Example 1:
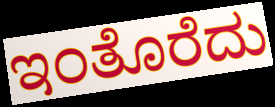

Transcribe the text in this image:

ಇಂತೊರೆದು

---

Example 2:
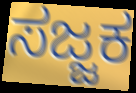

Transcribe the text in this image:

ಸಜ್ಜಕ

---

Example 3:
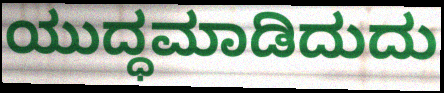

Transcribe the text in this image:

ಯುದ್ಧಮಾಡಿದುದು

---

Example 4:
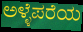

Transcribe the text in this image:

ಅಳ್ಳೆಪರೆಯ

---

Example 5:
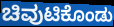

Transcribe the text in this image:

ಚಿವುಟಿಕೊಂಡು